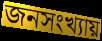
জনসংখ্যায়